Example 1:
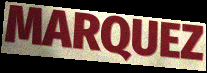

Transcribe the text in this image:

MARQUEZ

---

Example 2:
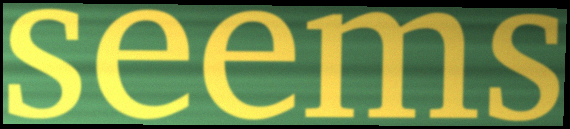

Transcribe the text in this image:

seems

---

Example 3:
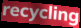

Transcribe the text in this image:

recycling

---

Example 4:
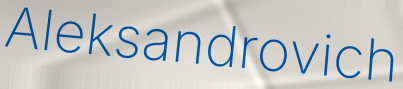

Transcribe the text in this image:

Aleksandrovich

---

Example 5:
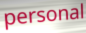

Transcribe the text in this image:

personal